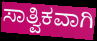
ಸಾತ್ವಿಕವಾಗಿ